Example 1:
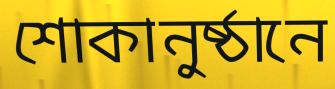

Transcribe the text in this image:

শোকানুষ্ঠানে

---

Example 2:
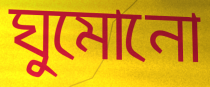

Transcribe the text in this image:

ঘুমোনো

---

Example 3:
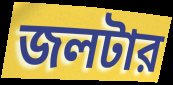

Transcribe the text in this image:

জলটার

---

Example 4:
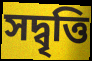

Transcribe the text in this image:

সদ্বৃত্তি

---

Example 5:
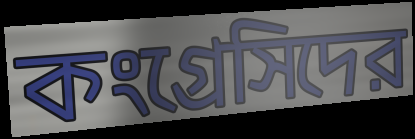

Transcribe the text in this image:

কংগ্রেসিদের